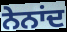
ਨੇਨਾਂਦ